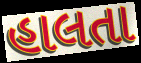
હાલતા